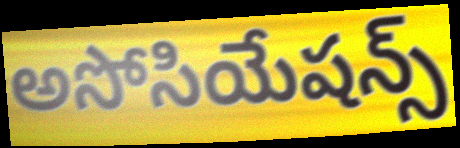
అసోసియేషన్స్